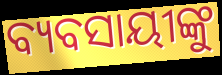
ବ୍ୟବସାୟୀଙ୍କୁ